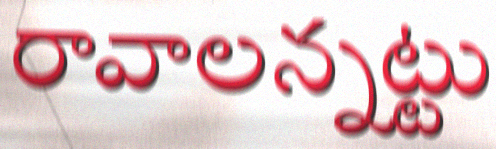
రావాలన్నట్టు